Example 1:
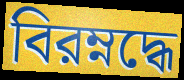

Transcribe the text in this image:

বিরম্নদ্ধে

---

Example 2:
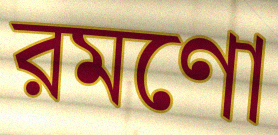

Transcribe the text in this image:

রমণো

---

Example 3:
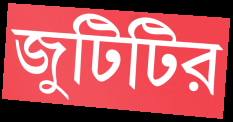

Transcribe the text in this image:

জুটিটির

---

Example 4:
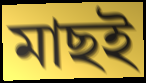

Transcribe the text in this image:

মাছই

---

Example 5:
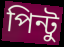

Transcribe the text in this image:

পিন্টু